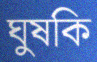
ঘুষকি